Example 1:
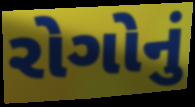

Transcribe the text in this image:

રોગોનું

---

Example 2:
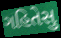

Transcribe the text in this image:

ગહિતેસુ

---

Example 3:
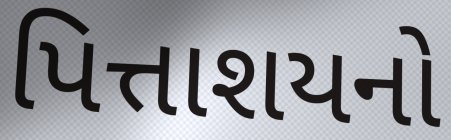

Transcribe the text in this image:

પિત્તાશયનો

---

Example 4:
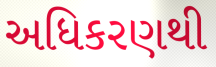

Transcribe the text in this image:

અધિકરણથી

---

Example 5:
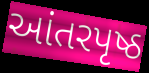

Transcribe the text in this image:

આંતરપૃષ્ઠ